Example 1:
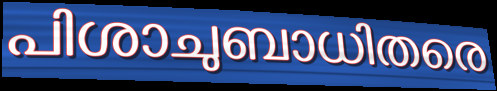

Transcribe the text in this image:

പിശാചുബാധിതരെ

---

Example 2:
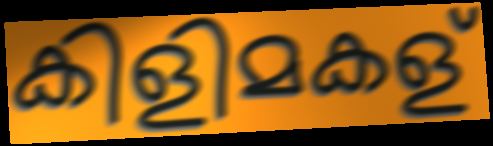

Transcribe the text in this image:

കിളിമകള്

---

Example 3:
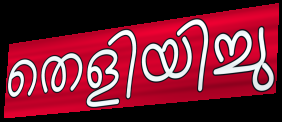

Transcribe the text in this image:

തെളിയിച്ചു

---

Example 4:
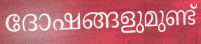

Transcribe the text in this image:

ദോഷങ്ങളുമുണ്ട്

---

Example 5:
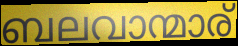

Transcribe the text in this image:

ബലവാന്മാര്